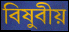
বিষুবীয়